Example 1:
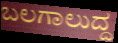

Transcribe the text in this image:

ಬಲಗಾಲುದ್ದ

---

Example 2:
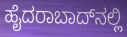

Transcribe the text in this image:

ಹೈದರಾಬಾದ್‌ನಲ್ಲಿ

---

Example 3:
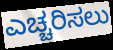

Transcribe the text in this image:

ಎಚ್ಚರಿಸಲು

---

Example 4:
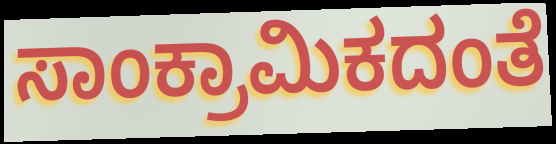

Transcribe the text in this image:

ಸಾಂಕ್ರಾಮಿಕದಂತೆ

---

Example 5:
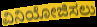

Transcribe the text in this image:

ವಿನಿಯೋಜಿಸಲು